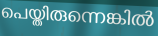
പെയ്തിരുന്നെങ്കിൽ